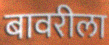
बावरीला